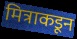
मित्राकडून